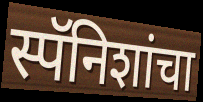
स्पॅनिशांचा